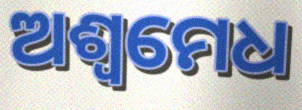
ଅଶ୍ୱମେଧ